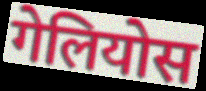
गेलियोस